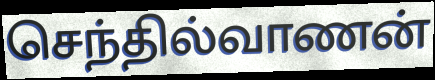
செந்தில்வாணன்